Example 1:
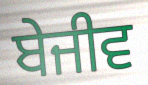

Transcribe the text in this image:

ਬੇਜੀਵ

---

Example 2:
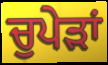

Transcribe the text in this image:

ਚੁਪੇੜਾਂ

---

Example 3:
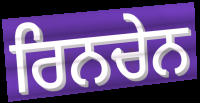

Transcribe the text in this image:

ਰਿਨਚੇਨ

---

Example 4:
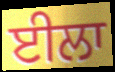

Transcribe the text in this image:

ਈਲਾ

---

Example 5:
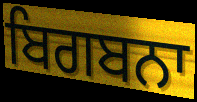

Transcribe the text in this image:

ਬਿਗਬਨਾ